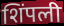
शिंपली